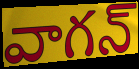
వాగన్